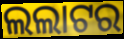
ଲଲାଟର